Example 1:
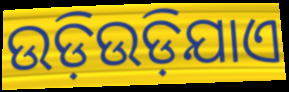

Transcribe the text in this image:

ଉଡ଼ିଉଡ଼ିଯାଏ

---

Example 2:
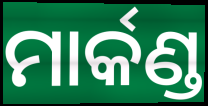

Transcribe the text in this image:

ମାର୍କଣ୍ଡ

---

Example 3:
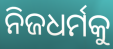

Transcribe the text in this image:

ନିଜଧର୍ମକୁ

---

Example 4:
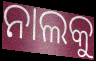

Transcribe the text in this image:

ନାଲକୁ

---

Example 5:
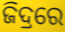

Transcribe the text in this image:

ଜିଦ୍ରରେ